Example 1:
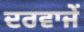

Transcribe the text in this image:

ਦਰਵਾਜੇਂ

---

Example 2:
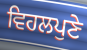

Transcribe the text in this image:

ਵਿਹਲਪੁਣੇ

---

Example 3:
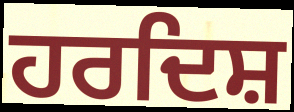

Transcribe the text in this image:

ਹਰਦਿਸ਼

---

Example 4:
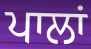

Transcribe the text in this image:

ਪਾਲਾਂ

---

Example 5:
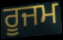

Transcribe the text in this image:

ਰੂਜਮ